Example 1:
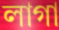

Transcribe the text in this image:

লাগা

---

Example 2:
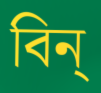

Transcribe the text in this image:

বিন্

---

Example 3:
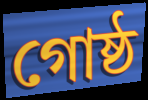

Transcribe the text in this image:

গোষ্ঠ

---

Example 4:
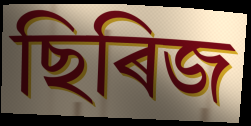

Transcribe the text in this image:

ছিৰিজ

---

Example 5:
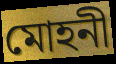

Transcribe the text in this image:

মোহনী